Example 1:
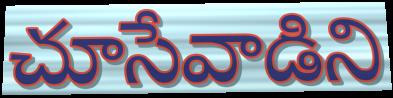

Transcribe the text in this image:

చూసేవాడిని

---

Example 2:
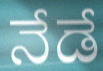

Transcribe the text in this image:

నేడే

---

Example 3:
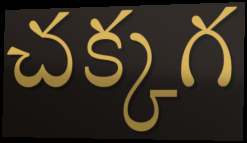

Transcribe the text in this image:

చక్కగ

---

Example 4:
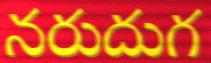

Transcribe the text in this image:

నరుదుగ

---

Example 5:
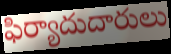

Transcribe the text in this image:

ఫిర్యాదుదారులు